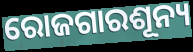
ରୋଜଗାରଶୂନ୍ୟ